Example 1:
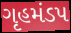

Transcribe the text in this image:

ગૃહમંડપ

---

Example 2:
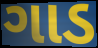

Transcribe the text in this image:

ગાડ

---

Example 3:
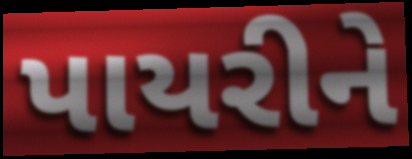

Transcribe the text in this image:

પાયરીને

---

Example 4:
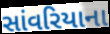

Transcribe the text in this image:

સાંવરિયાના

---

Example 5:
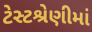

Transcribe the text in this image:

ટેસ્ટશ્રેણીમાં